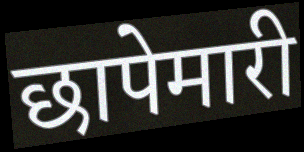
छापेमारी